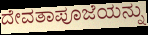
ದೇವತಾಪೂಜೆಯನ್ನು